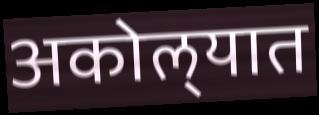
अकोल्यात